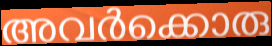
അവർക്കൊരു